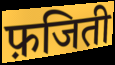
फ़जिती